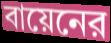
বায়েনের